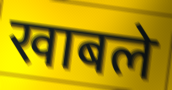
खाबले